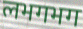
लभगभग